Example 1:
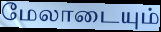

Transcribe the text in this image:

மேலாடையும்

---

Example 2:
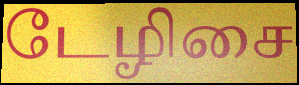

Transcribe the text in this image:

டேழிசை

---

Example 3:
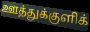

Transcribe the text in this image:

ஊத்துக்குளிக்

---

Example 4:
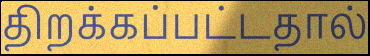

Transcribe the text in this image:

திறக்கப்பட்டதால்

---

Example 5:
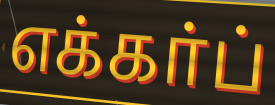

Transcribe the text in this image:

எக்கர்ப்